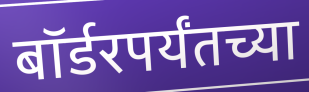
बॉर्डरपर्यंतच्या